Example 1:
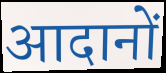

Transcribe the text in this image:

आदानों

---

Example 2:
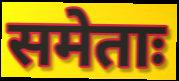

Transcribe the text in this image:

समेताः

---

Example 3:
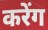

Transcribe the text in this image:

करेंग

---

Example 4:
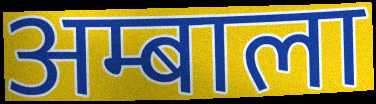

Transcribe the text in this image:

अम्‍बाला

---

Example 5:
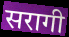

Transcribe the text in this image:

सरागी